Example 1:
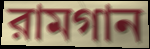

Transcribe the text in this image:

রামগান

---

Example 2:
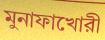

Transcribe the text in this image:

মুনাফাখোরী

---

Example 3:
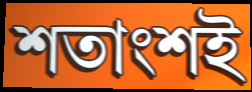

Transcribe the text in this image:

শতাংশই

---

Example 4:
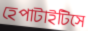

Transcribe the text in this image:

হেপাটাইটিসে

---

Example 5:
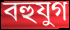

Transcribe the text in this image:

বহুযুগ